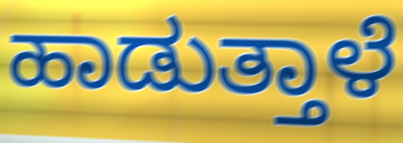
ಹಾಡುತ್ತಾಳೆ